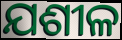
ଯଶୀଳ